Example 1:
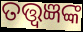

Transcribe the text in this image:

ତତ୍ତ୍ଵଜ୍ଞଙ୍କ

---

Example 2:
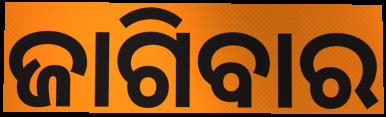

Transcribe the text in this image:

ଜାଗିବାର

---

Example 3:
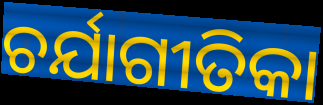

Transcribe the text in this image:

ଚର୍ଯାଗୀତିକା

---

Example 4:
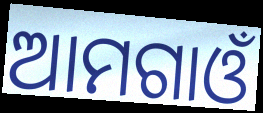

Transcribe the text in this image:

ଆମଗାଓଁ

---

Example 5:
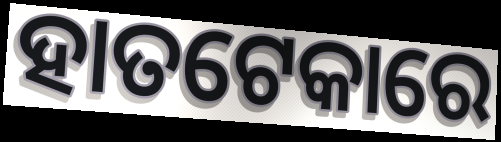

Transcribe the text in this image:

ହାତଟେକାରେ